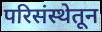
परिसंस्थेतून